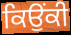
ਕਿਉਂਕੀ